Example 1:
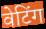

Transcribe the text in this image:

वेटिंग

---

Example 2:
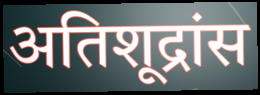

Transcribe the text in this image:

अतिशूद्रांस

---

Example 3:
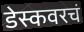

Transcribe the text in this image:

डेस्कवरचं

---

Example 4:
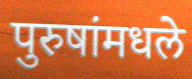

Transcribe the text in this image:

पुरुषांमधले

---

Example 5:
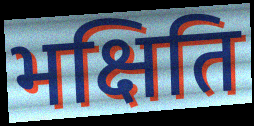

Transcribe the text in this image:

भक्षिति